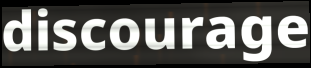
discourage